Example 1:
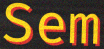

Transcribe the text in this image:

Sem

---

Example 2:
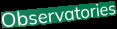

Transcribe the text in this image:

Observatories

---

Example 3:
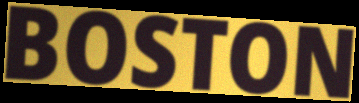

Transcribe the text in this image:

BOSTON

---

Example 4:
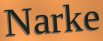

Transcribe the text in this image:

Narke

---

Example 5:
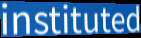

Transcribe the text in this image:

instituted